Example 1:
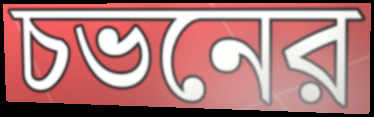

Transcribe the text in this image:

চভনের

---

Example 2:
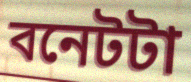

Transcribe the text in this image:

বনেটটা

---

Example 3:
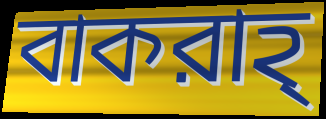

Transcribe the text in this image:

বাকরাহ্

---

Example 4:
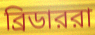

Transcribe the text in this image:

ব্রিডাররা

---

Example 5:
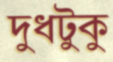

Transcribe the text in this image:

দুধটুকু